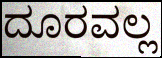
ದೂರವಲ್ಲ